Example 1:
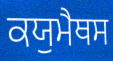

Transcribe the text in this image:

ਕਯੁਮੈਥਸ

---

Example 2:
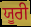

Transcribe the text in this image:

ਯੂਰੀ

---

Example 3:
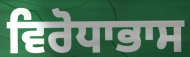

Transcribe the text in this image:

ਵਿਰੋਧਾਭਾਸ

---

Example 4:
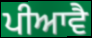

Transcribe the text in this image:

ਪੀਆਵੈ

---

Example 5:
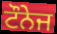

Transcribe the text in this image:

ਟੌਨੇਜ